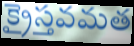
క్రైస్తవమత